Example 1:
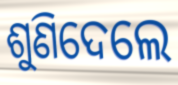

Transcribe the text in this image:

ଶୁଣିଦେଲେ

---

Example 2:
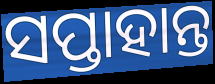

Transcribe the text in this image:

ସପ୍ତାହାନ୍ତ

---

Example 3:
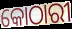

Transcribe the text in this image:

କୋଠାରୀ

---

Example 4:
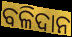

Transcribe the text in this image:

ବଳିଦାନ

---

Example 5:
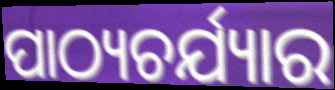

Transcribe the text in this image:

ପାଠ୍ୟଚର୍ଯ୍ୟାର